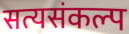
सत्यसंकल्प